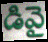
డివై